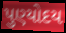
પુણ્યોદય